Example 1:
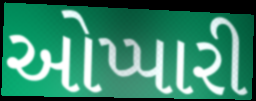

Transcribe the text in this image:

ઓપ્પારી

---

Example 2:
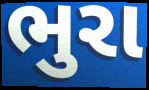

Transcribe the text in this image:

ભુરા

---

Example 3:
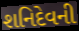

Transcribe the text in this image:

શનિદેવની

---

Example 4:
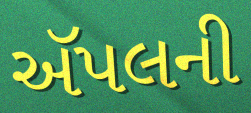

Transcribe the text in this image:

ઍપલની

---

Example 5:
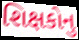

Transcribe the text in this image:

શિક્ષકોનુ